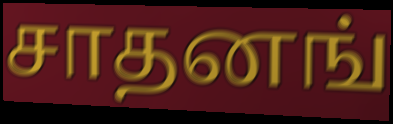
சாதனங்